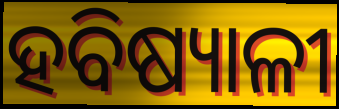
ହବିଷ୍ୟାଳୀ